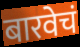
बारवेचं